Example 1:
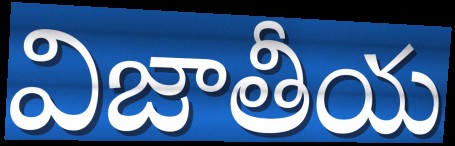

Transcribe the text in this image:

విజాతీయ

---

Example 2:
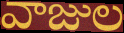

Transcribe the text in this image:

వాజుల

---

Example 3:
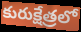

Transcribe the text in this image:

కురుక్షేత్రలో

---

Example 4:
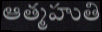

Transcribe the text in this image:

ఆత్మహుతి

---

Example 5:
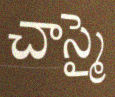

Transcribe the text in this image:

చాస్మై